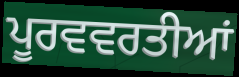
ਪੂਰਵਵਰਤੀਆਂ